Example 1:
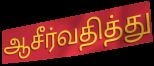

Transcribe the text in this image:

ஆசீர்வதித்து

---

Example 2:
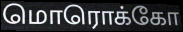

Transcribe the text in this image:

மொரொக்கோ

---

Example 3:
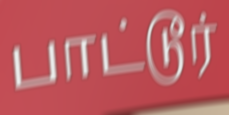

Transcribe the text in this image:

பாட்டூர்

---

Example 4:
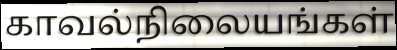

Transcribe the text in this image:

காவல்நிலையங்கள்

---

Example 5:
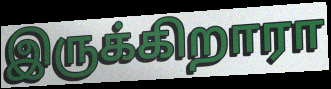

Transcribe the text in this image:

இருக்கிறாரா